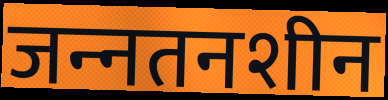
जन्नतनशीन